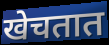
खेचतात